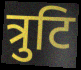
त्रुटि